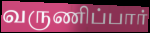
வருணிப்பார்